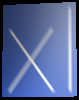
xl